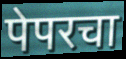
पेपरचा